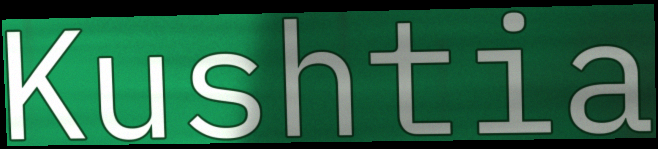
Kushtia